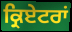
ਕ੍ਰਿਏਟਰਾਂ